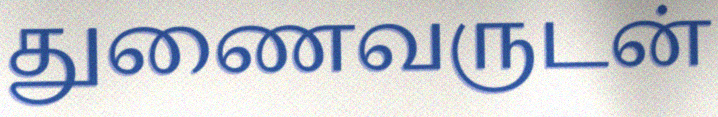
துணைவருடன்